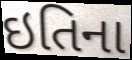
ઇતિના